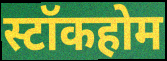
स्टॉकहोम